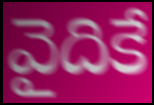
వైదికే